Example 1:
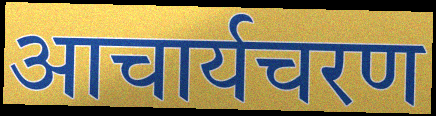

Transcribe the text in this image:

आचार्यचरण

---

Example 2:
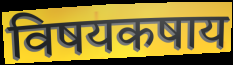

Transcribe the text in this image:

विषयकषाय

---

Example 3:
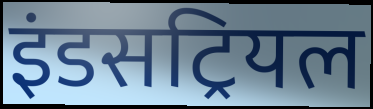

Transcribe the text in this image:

इंडसट्रियल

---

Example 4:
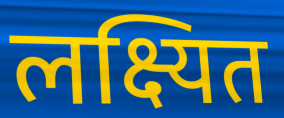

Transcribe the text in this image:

लक्ष्यित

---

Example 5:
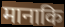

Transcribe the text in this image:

मानाकि